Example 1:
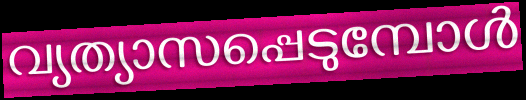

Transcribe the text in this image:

വ്യത്യാസപ്പെടുമ്പോൾ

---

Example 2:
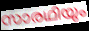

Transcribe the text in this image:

സാരഥിയും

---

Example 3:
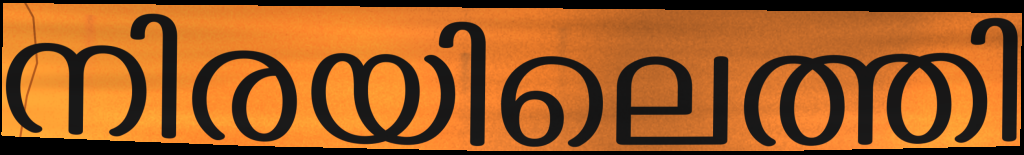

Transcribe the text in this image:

നിരയിലെത്തി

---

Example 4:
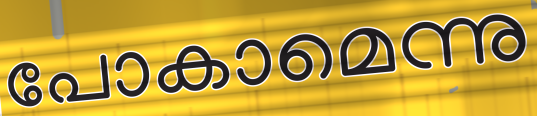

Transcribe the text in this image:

പോകാമെന്നു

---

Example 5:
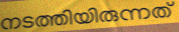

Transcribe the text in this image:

നടത്തിയിരുന്നത്